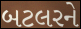
બટલરને